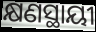
କ୍ଷଣସ୍ଥାୟୀ